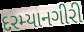
દરમ્યાનગીરી